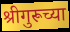
श्रीगुरूच्या